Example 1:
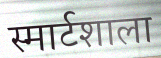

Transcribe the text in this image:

स्मार्टशाला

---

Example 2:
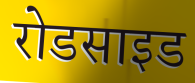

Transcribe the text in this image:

रोडसाइड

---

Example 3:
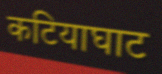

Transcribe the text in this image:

कटियाघाट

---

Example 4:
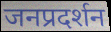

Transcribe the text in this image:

जनप्रदर्शन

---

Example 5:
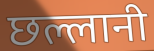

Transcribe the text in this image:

छल्लानी